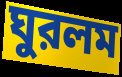
ঘুরলম